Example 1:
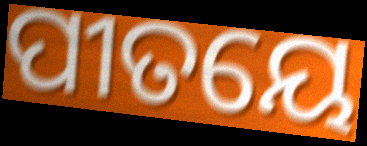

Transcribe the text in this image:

ପୀତୟେ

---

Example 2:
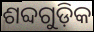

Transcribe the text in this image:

ଶବ୍ଦଗୁଡ଼ିକ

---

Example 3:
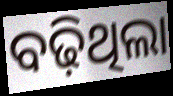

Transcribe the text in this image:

ବଢ଼ିଥିଲା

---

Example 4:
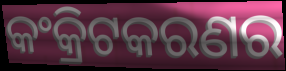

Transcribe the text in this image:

କଂକ୍ରିଟକରଣର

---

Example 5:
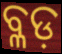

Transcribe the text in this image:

ବ୍ଳଡ଼